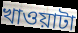
খাওয়াটা